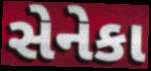
સેનેકા